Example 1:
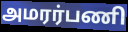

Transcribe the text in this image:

அமரர்பணி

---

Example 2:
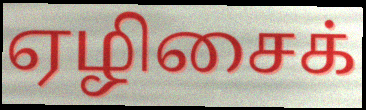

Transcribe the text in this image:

ஏழிசைக்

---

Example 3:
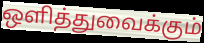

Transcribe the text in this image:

ஒளித்துவைக்கும்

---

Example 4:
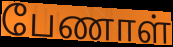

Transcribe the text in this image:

பேணாள்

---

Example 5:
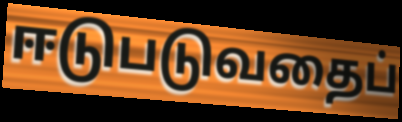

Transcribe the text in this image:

ஈடுபடுவதைப்